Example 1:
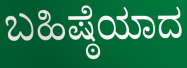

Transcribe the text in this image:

ಬಹಿಷ್ಠೆಯಾದ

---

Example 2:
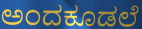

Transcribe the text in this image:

ಅಂದಕೂಡಲೆ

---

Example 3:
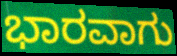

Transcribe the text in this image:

ಭಾರವಾಗು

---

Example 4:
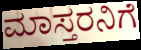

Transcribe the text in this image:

ಮಾಸ್ತರನಿಗೆ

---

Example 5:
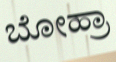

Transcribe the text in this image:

ಬೋಹ್ರಾ